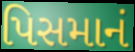
પિસમાનં